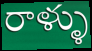
రాళ్ళు